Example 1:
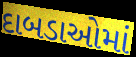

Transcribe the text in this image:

દાબડાઓમાં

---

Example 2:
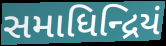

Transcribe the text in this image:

સમાધિન્દ્રિયં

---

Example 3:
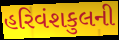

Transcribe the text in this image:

હરિવંશકુલની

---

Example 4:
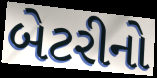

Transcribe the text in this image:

બેટરીનો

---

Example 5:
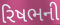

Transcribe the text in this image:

રિષભની